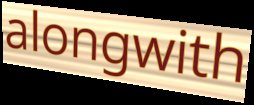
alongwith